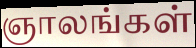
ஞாலங்கள்